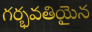
గర్భవతియైన